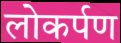
लोकर्पण